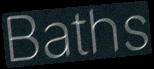
Baths